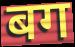
बग